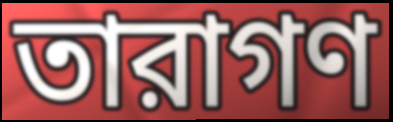
তারাগণ